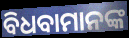
ବିଧବାମାନଙ୍କ